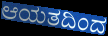
ಆಯತದಿಂದ